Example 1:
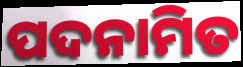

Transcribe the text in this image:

ପଦନାମିତ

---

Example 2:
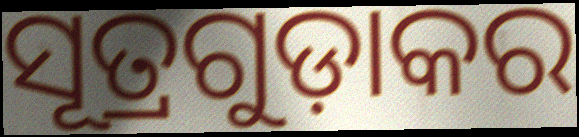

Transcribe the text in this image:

ସୂତ୍ରଗୁଡ଼ାକର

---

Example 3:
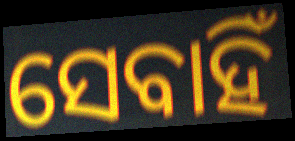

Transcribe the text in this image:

ସେବାହିଁ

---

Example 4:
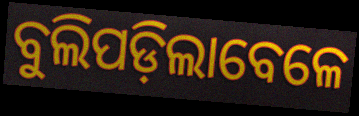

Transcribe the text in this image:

ବୁଲିପଡ଼ିଲାବେଳେ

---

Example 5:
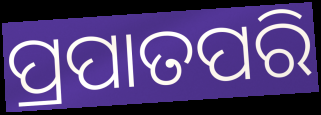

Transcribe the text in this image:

ପ୍ରପାତପରି